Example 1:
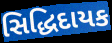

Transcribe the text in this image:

સિદ્ધિદાયક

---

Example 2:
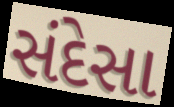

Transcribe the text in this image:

સંદેસા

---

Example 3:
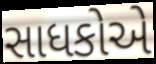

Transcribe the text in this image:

સાધકોએ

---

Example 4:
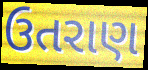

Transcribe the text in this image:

ઉતરાણ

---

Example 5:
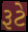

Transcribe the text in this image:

રૂટે